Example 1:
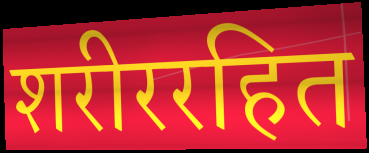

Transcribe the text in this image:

शरीररहित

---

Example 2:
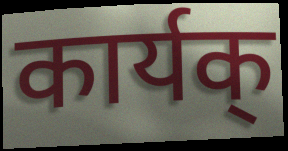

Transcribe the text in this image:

कार्यक्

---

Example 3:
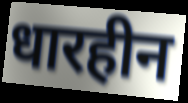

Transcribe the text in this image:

धारहीन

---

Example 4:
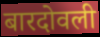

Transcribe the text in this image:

बारदोवली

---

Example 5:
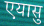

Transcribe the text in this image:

एयासु